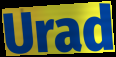
Urad